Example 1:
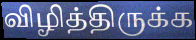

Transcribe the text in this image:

விழித்திருக்க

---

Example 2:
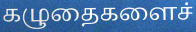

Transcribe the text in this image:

கழுதைகளைச்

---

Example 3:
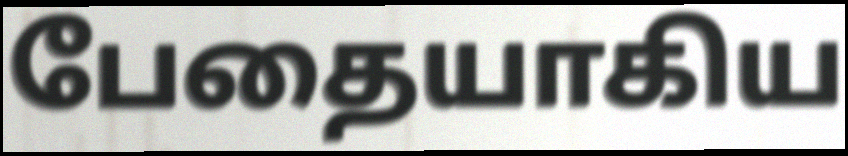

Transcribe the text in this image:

பேதையாகிய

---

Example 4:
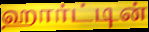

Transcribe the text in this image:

ஹார்ட்டின்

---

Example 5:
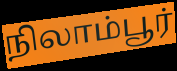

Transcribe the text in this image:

நிலாம்பூர்